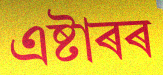
এষ্টাৰৰ